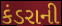
કંડરાની